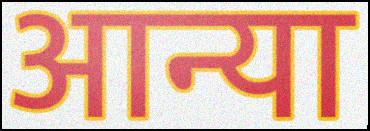
आन्या